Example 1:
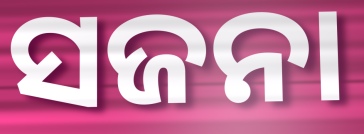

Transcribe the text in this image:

ସଜନା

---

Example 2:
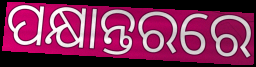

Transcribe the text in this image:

ପକ୍ଷାନ୍ତରରେ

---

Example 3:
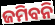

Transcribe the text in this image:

ଜମିବନି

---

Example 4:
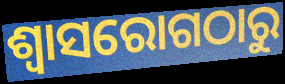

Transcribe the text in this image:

ଶ୍ୱାସରୋଗଠାରୁ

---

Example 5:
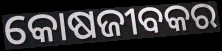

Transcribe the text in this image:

କୋଷଜୀବକର